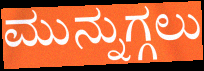
ಮುನ್ನುಗ್ಗಲು